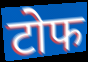
टोफ